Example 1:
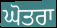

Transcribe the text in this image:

ਘੋਤਰਾ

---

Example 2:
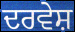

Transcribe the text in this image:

ਦਰਵੇਸ਼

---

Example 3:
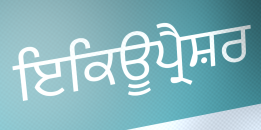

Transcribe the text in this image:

ਇਕਿਊਪ੍ਰੈਸ਼ਰ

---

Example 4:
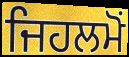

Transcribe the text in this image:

ਜਿਹਲਮੋਂ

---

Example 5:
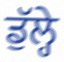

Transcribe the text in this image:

ਡੁੱਲ੍ਹੇ